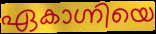
ഏകാഗ്നിയെ